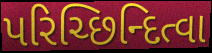
પરિચ્છિન્દિત્વા